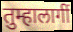
तुम्हालागीं